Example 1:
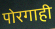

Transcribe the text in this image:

पोरगाही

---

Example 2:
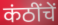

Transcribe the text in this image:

कंठींचें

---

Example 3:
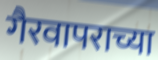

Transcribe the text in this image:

गैरवापराच्या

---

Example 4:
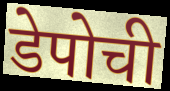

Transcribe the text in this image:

डेपोची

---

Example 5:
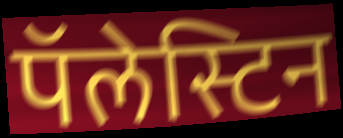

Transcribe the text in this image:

पॅलेस्टिन